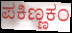
ಪಕಿಣ್ಣಕಂ